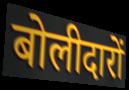
बोलीदारों